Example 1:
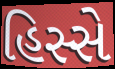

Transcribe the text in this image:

હિસ્સે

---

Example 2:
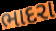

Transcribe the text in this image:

ભાદરા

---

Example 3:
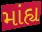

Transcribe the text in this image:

માંહ્ય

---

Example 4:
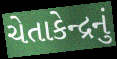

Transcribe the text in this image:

ચેતાકેન્દ્રનું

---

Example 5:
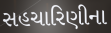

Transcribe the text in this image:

સહચારિણીના